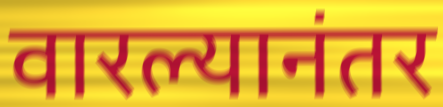
वारल्यानंतर